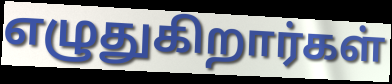
எழுதுகிறார்கள்